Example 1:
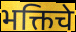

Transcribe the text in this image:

भक्तिचे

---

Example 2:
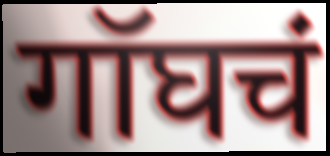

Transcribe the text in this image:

गॉघचं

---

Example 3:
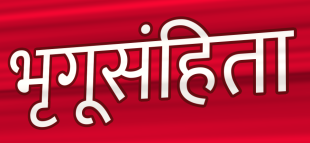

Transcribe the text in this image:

भृगूसंहिता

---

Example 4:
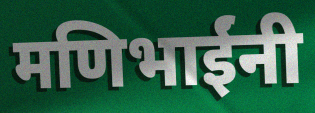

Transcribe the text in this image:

मणिभाईंनी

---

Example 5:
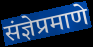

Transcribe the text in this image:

संज्ञेप्रमाणे